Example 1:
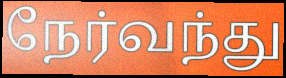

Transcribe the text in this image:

நேர்வந்து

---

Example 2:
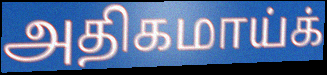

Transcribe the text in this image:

அதிகமாய்க்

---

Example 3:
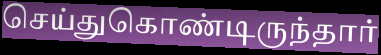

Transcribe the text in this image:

செய்துகொண்டிருந்தார்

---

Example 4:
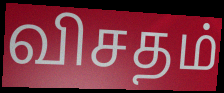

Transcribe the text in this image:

விசதம்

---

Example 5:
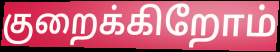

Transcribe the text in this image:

குறைக்கிறோம்